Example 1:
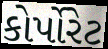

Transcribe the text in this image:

કોર્પોરેટ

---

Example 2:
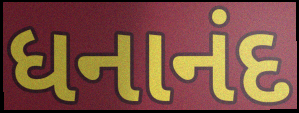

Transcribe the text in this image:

ધનાનંદ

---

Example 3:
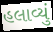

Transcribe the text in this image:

હલાવ્યું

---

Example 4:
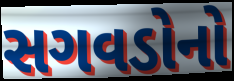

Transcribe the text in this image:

સગવડોનો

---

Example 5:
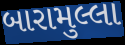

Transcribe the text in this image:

બારામુલ્લા